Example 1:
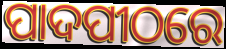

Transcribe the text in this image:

ପାଦପୀଠରେ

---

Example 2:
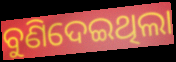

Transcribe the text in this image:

ବୁଣିଦେଇଥିଲା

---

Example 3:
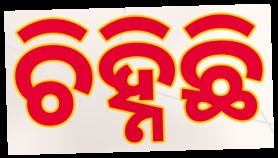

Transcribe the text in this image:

ଚିହ୍ନିଛି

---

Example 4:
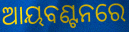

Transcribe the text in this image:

ଆୟବଣ୍ଟନରେ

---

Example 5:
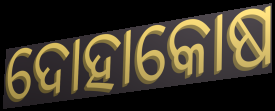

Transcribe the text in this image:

ଦୋହାକୋଷ